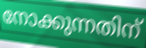
നോക്കുന്നതിന്